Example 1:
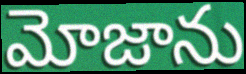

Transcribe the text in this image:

మోజాను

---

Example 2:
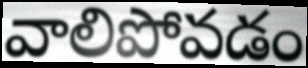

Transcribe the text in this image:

వాలిపోవడం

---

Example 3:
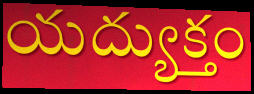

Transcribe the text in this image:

యద్యుక్తం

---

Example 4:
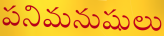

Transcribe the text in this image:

పనిమనుషులు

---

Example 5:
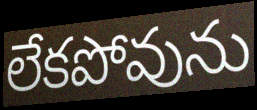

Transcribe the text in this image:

లేకపోవును